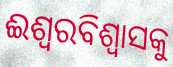
ଈଶ୍ୱରବିଶ୍ୱାସକୁ